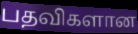
பதவிகளான